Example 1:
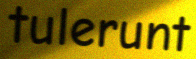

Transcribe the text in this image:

tulerunt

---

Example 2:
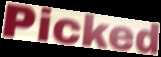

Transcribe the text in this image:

Picked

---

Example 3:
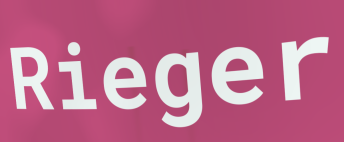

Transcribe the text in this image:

Rieger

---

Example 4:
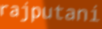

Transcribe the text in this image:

rajputani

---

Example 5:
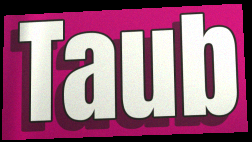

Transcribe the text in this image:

Taub